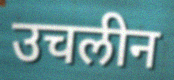
उचलीन